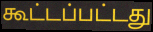
கூட்டப்பட்டது